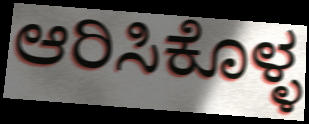
ಆರಿಸಿಕೊಳ್ಳ